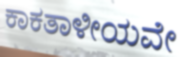
ಕಾಕತಾಳೀಯವೇ